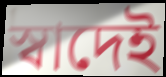
স্বাদেই